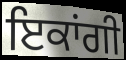
ਇਕਾਂਗੀ